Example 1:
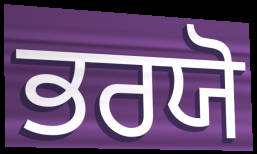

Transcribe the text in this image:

ਭਰਯੋ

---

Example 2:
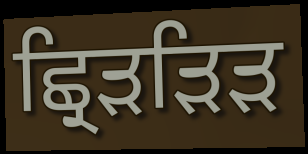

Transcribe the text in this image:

ਛ੍ਰਿੜੜਿੜ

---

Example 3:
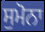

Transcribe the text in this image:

ਸੁਮੋਨਾ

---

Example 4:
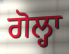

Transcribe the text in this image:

ਗੋਲ੍ਹਾ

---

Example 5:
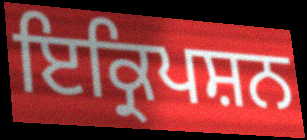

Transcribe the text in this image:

ਇਕ੍ਰਿਪਸ਼ਨ